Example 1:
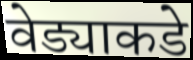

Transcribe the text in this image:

वेड्याकडे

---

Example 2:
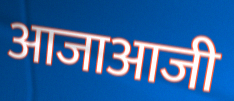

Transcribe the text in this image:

आजाआजी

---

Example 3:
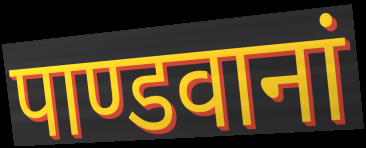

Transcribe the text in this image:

पाण्डवानां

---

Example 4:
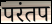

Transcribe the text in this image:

परंतप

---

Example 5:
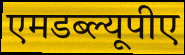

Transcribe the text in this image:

एमडब्ल्यूपीए